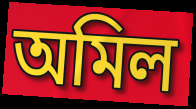
অমিল